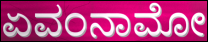
ಏವಂನಾಮೋ